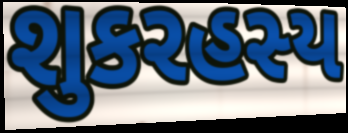
શુકરહસ્ય